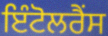
ਇੰਟੋਲਰੈਂਸ